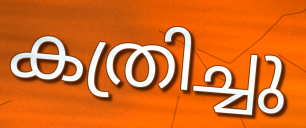
കത്രിച്ചു